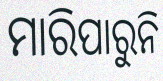
ମାରିପାରୁନି